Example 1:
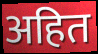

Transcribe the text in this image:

अहित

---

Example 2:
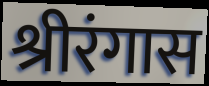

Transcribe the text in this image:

श्रीरंगास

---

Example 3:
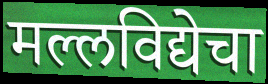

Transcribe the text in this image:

मल्लविद्येचा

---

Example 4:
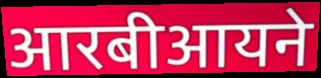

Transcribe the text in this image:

आरबीआयने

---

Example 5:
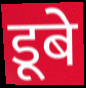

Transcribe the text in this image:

डूबे